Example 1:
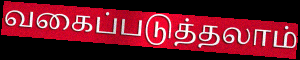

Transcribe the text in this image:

வகைப்படுத்தலாம்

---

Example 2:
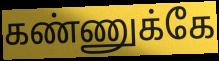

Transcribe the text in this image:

கண்ணுக்கே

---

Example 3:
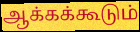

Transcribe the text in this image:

ஆக்கக்கூடும்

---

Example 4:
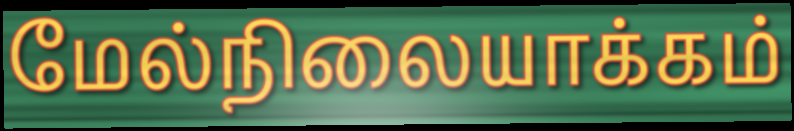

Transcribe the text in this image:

மேல்நிலையாக்கம்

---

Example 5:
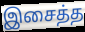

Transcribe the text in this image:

இசைத்த